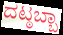
ದಟ್ಠಬ್ಬಾ